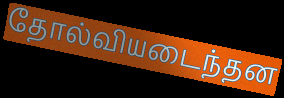
தோல்வியடைந்தன